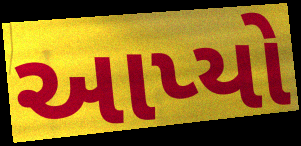
આપ્યો